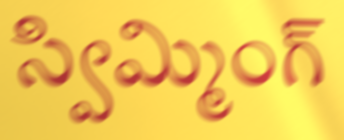
స్విమ్మింగ్